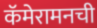
कॅमेरामनची